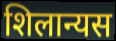
शिलान्यस